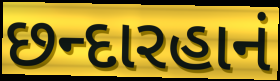
છન્દારહાનં